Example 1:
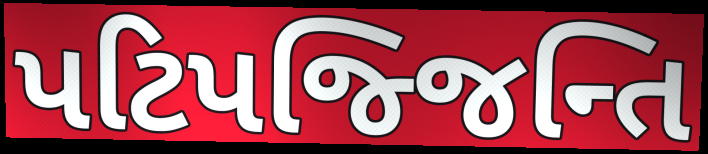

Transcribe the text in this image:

પટિપજ્જિન્તિ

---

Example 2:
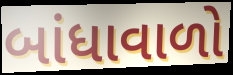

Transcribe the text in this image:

બાંધાવાળો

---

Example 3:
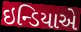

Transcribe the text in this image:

ઇન્ડિયાએ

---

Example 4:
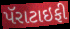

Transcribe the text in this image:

પૅરાટાઇફી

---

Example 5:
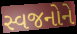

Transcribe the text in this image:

સ્વજનોને